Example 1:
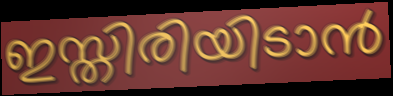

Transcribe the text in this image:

ഇസ്തിരിയിടാൻ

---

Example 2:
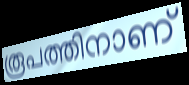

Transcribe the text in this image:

രൂപത്തിനാണ്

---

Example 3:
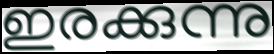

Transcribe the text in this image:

ഇരക്കുന്നു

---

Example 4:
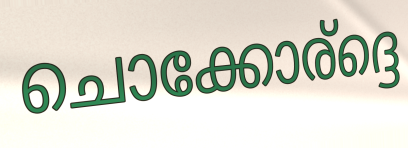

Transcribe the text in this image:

ചൊക്കോര്ദ്ദെ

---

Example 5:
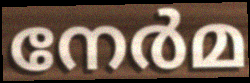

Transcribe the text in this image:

നേർമ